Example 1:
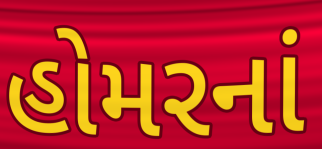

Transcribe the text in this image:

હોમરનાં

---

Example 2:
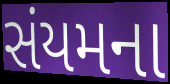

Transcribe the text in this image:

સંયમના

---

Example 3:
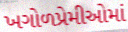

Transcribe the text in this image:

ખગોળપ્રેમીઓમાં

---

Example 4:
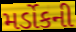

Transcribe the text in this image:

મર્ડોકની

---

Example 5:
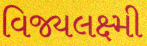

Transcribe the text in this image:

વિજ્યલક્ષ્મી